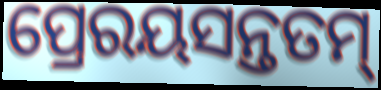
ପ୍ରେରୟସନ୍ତତମ୍